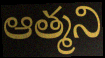
ఆత్మని